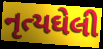
નૃત્યઘેલી